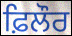
ਫ਼ਿਲੌਰ